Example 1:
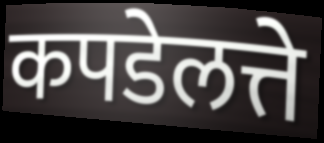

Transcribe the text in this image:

कपडेलत्ते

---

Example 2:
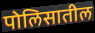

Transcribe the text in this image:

पोलिसातील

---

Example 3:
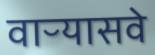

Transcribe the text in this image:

वाऱ्यासवे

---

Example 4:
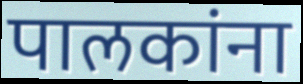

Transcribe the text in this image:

पालकांना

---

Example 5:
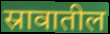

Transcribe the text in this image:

स्रावातील